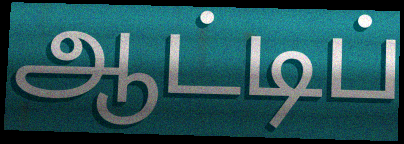
ஆட்டிப்